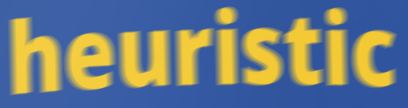
heuristic